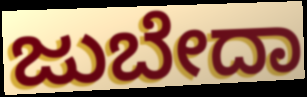
ಜುಬೇದಾ